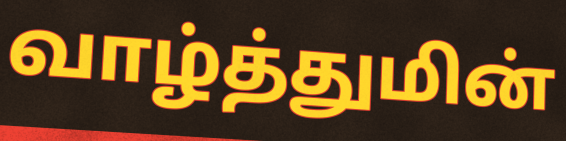
வாழ்த்துமின்